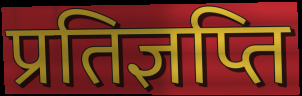
प्रतिज्ञप्ति